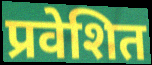
प्रवेशित